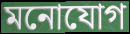
মনোযোগ